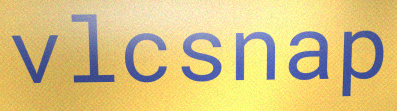
vlcsnap